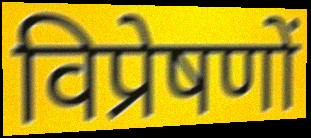
विप्रेषणों